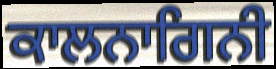
ਕਾਲਨਾਗਿਨੀ